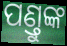
ପଣ୍ତୁଙ୍କ